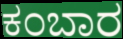
ಕಂಬಾರ